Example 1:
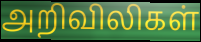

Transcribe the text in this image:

அறிவிலிகள்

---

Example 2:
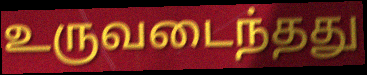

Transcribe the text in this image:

உருவடைந்தது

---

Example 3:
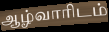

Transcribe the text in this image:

ஆழ்வாரிடம்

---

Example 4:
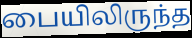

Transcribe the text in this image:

பையிலிருந்த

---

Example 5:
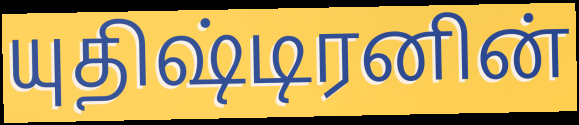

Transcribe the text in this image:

யுதிஷ்டிரனின்